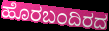
ಹೊರಬಂದಿರದ